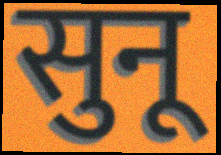
सुनू